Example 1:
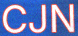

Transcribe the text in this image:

CJN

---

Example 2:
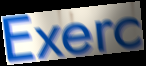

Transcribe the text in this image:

Exerc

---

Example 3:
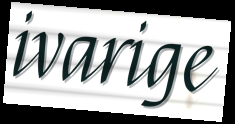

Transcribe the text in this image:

ivarige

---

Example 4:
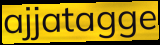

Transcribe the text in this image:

ajjatagge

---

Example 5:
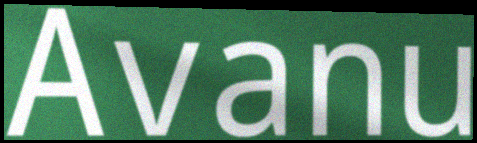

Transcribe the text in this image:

Avanu